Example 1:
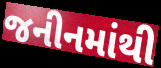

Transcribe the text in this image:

જનીનમાંથી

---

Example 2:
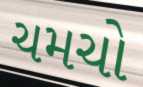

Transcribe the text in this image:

ચમચો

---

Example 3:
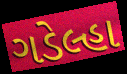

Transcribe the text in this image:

ગડેલ્હા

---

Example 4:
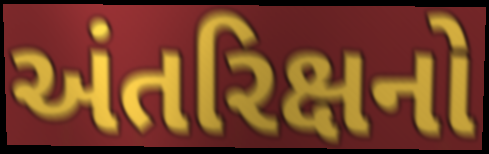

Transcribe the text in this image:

અંતરિક્ષનો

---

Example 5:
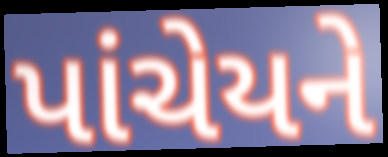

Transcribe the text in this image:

પાંચેયને